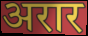
अरार